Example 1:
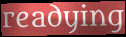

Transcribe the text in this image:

readying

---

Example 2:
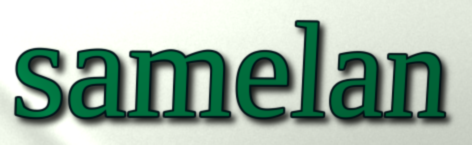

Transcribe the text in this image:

samelan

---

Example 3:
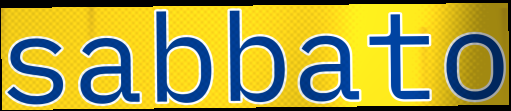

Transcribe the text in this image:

sabbato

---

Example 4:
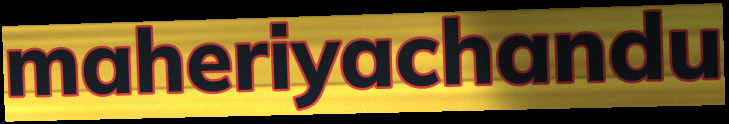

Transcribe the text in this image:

maheriyachandu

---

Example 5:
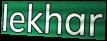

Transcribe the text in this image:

lekhar